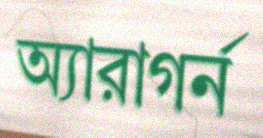
অ্যারাগর্ন